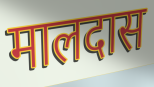
मालदास